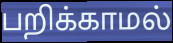
பறிக்காமல்